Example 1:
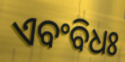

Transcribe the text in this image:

ଏବଂବିଧଃ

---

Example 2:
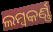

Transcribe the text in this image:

ଲମ୍ୱକର୍ଣ୍ଣ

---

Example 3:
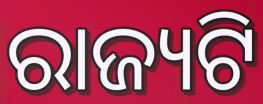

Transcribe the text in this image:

ରାଜ୍ୟଟି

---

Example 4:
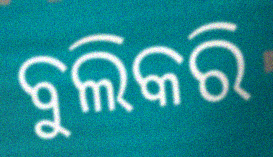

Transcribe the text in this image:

ବୁଲିକରି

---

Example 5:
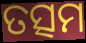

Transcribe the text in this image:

ତତ୍ସମ